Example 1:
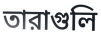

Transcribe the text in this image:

তারাগুলি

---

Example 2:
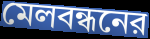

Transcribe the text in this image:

মেলবন্ধনের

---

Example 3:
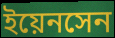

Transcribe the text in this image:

ইয়েনসেন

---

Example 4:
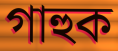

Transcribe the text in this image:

গাহুক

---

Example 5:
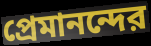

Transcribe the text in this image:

প্রেমানন্দের